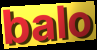
balo